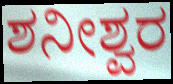
ಶನೀಶ್ವರ